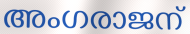
അംഗരാജന്